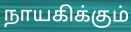
நாயகிக்கும்